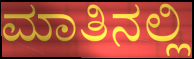
ಮಾತಿನಲ್ಲಿ